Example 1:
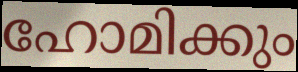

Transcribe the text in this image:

ഹോമിക്കും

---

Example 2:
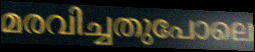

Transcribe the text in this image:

മരവിച്ചതുപോലെ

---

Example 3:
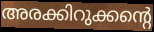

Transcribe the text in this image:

അരക്കിറുക്കന്റെ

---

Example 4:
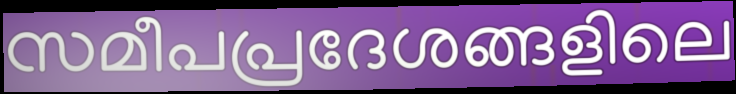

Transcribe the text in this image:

സമീപപ്രദേശങ്ങളിലെ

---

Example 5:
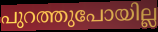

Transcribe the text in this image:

പുറത്തുപോയില്ല